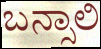
ಬನ್ಸಾಲಿ